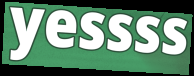
yessss